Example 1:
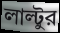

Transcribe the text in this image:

লাল্টুর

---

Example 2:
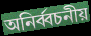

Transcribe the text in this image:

অনির্ব্বচনীয়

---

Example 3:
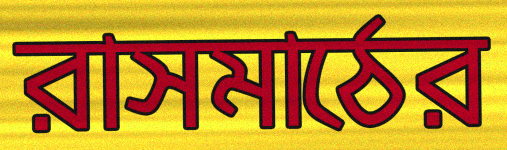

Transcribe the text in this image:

রাসমাঠের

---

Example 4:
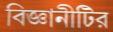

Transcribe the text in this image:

বিজ্ঞানীটির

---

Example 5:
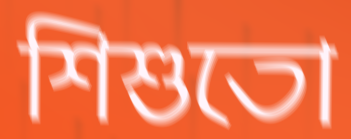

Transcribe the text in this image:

শিশুতো